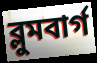
ব্লুমবার্গ